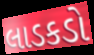
લાડકડો